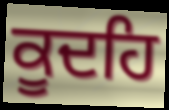
ਕੂਦਹਿ